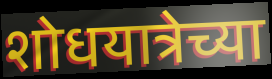
शोधयात्रेच्या